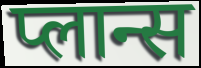
प्लान्स